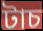
টাচ